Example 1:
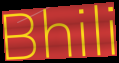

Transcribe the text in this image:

Bhili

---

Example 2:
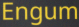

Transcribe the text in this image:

Engum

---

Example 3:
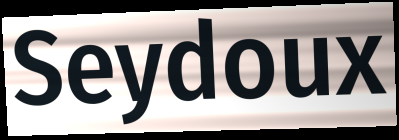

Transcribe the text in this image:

Seydoux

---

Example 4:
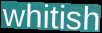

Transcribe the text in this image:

whitish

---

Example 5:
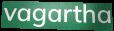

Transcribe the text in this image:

vagartha